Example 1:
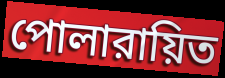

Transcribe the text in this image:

পোলারায়িত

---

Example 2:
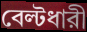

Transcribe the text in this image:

বেল্টধারী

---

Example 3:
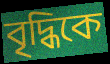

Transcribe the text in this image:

বৃদ্ধিকে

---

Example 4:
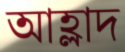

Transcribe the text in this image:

আহ্লাদ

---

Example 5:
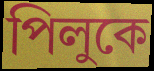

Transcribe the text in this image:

পিলুকে